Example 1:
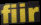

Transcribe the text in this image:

fiir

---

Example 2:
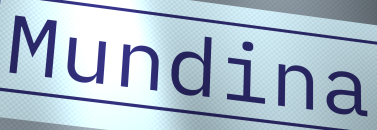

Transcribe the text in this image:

Mundina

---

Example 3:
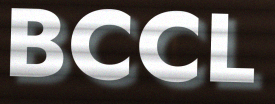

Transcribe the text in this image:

BCCL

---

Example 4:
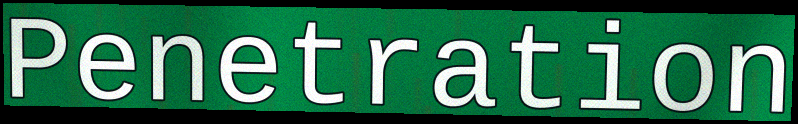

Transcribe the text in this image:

Penetration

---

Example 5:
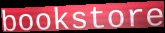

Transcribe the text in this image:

bookstore